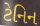
ટેનિન